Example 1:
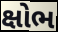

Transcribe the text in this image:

ક્ષોભ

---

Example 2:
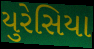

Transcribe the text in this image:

યુરેસિયા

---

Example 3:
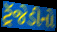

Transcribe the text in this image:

ટ્રૅજેડીનો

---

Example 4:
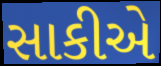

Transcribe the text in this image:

સાકીએ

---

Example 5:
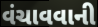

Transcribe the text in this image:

વંચાવવાની